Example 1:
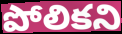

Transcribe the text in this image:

పోలికని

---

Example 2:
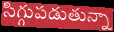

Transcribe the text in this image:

సిగ్గుపడుతున్నా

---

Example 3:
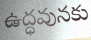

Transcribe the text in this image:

ఉద్ధవునకు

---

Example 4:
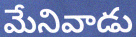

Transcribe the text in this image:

మేనివాడు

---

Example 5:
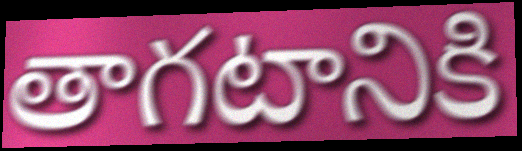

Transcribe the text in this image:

తాగటానికి